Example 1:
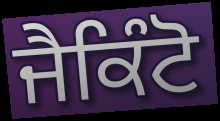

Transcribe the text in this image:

ਜੈਕਿੰਟੋ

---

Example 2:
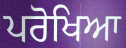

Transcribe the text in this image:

ਪਰੋਖਿਆ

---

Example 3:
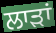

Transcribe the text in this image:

ਲਾੜਾਂ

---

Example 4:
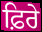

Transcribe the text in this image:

ਫ਼ਿਰੇ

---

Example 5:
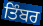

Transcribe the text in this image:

ਤਿੰਬਰ